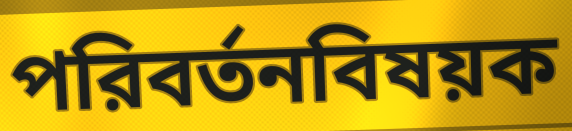
পরিবর্তনবিষয়ক